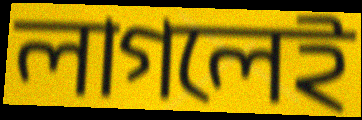
লাগলেই